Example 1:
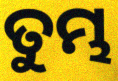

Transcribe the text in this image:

ତୁମ୍ଭ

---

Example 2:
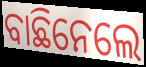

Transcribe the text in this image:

ବାଛିନେଲେ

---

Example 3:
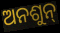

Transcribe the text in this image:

ଅନଶୁନ୍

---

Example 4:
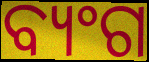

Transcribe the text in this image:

ବ୍ୟଂଗ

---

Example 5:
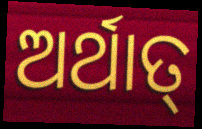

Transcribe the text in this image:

ଅର୍ଥାତ୍